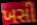
ખસી